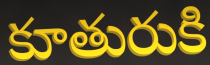
కూతురుకి